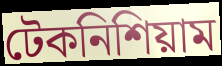
টেকনিশিয়াম